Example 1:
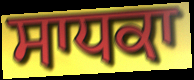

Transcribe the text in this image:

ਸਾਧਕਾ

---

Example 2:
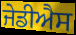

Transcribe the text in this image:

ਜੇਡੀਐਸ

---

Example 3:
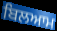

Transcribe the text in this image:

ਬਿਲਆਮ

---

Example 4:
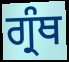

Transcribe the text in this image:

ਗ੍ਰੰਥ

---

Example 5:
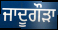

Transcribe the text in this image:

ਜਾਦੂਗੌੜਾ